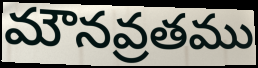
మౌనవ్రతము